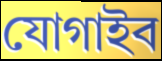
যোগাইব